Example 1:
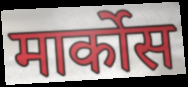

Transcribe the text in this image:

मार्कोस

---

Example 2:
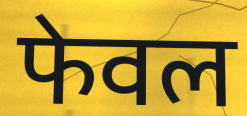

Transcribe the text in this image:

फेवल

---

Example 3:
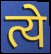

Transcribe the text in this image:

त्ये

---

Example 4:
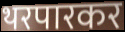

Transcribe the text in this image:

थरपारकर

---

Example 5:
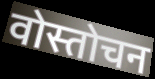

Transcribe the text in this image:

वोस्तोचन